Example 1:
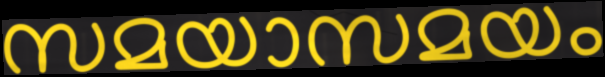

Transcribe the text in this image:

സമയാസമയം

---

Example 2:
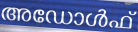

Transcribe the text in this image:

അഡോൾഫ്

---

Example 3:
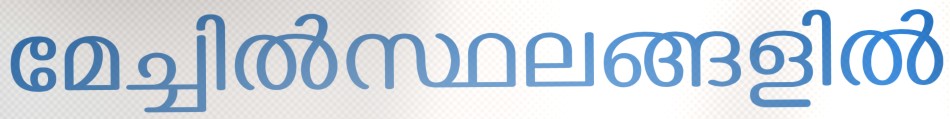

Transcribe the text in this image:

മേച്ചിൽസ്ഥലങ്ങളിൽ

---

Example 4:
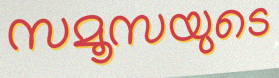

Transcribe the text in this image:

സമൂസയുടെ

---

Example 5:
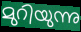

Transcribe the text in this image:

മുറിയുന്നു